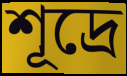
শূদ্রে